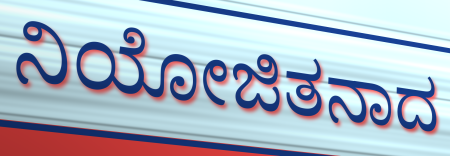
ನಿಯೋಜಿತನಾದ